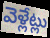
వెళ్లేట్లు